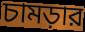
চামড়ার